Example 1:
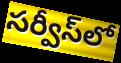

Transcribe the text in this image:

సర్వీస్‌లో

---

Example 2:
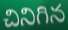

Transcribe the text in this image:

చినిగిన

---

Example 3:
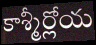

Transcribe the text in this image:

కాశ్మీర్లోయ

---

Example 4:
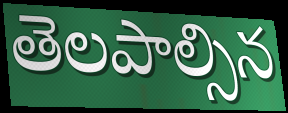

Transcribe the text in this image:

తెలపాల్సిన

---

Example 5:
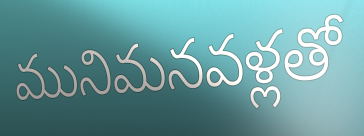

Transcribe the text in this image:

మునిమనవళ్లతో